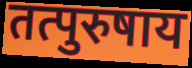
तत्पुरुषाय